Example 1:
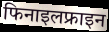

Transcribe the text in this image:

फिनाइलफ्राइन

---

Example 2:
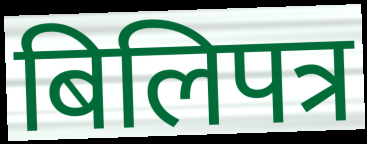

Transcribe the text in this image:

बिलिपत्र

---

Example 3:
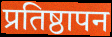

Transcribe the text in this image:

प्रतिष्ठापन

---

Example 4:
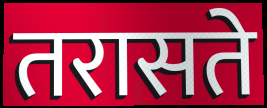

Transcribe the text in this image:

तरासते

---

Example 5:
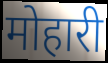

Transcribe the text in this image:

मोहारी